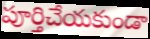
పూర్తిచేయకుండా